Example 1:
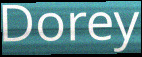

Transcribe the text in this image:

Dorey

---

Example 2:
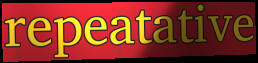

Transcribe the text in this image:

repeatative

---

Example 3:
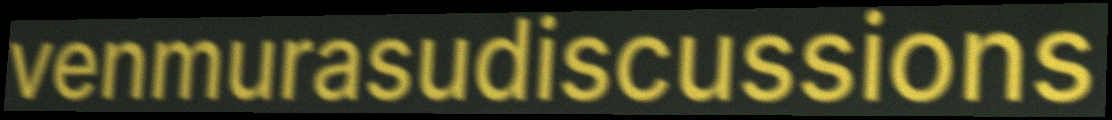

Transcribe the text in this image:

venmurasudiscussions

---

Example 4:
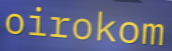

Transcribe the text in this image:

oirokom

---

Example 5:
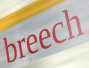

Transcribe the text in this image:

breech